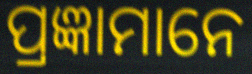
ପ୍ରଜ୍ଞାମାନେ